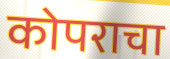
कोपराचा